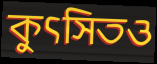
কুৎসিতও